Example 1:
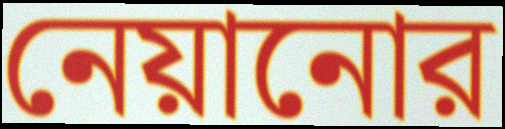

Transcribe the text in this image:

নেয়ানোর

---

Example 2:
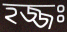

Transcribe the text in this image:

হজ্জঃ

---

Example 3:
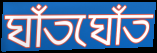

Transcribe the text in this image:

ঘাঁতঘোঁত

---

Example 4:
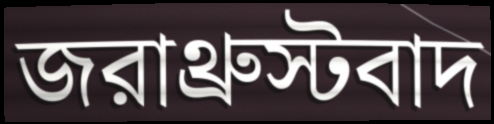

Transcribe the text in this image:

জরাথ্রুস্টবাদ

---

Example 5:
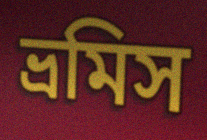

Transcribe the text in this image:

ভ্রমিস